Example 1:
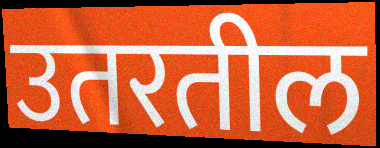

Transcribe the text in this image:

उतरतील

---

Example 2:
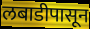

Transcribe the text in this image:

लबाडीपासून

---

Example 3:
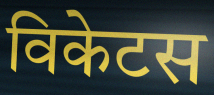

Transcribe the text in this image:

विकेटस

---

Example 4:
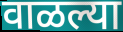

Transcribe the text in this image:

वाळल्या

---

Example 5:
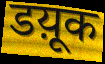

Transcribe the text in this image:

डय़ूक